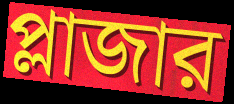
প্লাজার